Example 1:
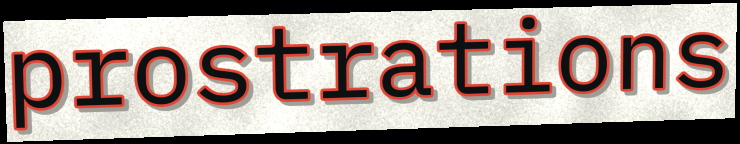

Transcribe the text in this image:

prostrations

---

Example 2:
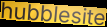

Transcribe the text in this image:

hubblesite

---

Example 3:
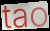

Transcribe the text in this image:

tao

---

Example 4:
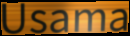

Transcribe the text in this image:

Usama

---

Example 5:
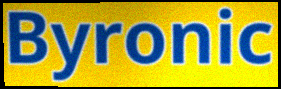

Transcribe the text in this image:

Byronic